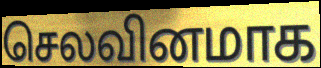
செலவினமாக